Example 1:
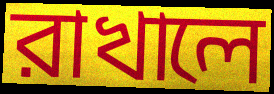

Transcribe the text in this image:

রাখালে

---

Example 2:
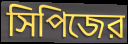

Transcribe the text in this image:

সিপিজের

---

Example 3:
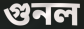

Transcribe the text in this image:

গুনল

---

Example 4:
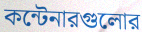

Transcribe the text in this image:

কন্টেনারগুলোর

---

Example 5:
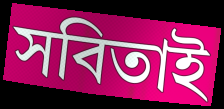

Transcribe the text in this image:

সবিতাই